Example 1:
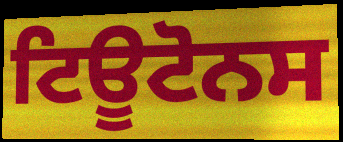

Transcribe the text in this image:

ਟਿਊਟੋਨਸ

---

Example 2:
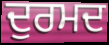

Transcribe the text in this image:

ਦੁਰਮਦ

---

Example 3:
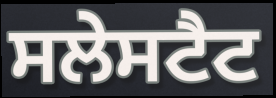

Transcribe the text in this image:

ਸਲੇਸਟੈਟ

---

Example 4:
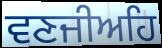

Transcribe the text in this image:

ਵਣਜੀਅਹਿ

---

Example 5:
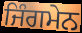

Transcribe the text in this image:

ਜਿੰਗਮੇਨ